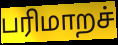
பரிமாறச்